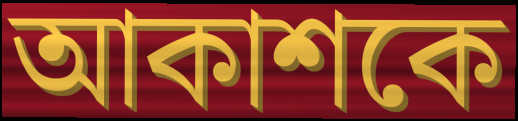
আকাশকে